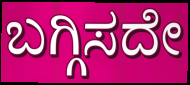
ಬಗ್ಗಿಸದೇ